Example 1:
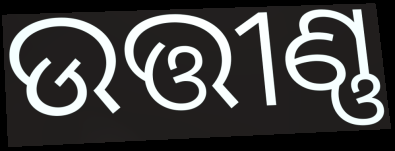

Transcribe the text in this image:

ଉତ୍ତୀଣ୍ଣ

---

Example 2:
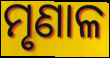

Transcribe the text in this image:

ମୃଣାଳ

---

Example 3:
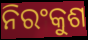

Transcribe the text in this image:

ନିରଂକୁଶ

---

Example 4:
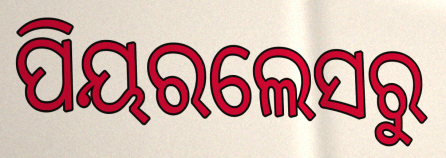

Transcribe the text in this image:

ପିୟରଲେସରୁ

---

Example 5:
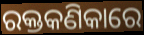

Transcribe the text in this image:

ରକ୍ତକଣିକାରେ